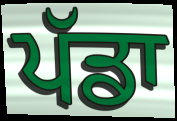
ਪੱਡਾ